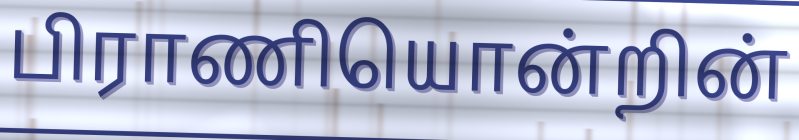
பிராணியொன்றின்